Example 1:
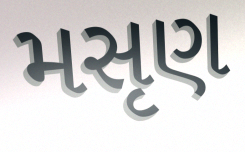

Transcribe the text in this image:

મસૃણ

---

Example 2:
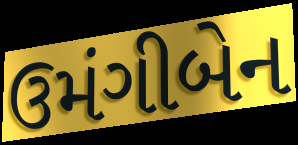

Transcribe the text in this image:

ઉમંગીબેન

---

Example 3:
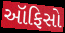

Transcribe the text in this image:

ઑફિસો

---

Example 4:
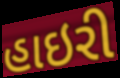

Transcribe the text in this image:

હાઇરી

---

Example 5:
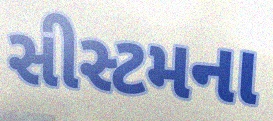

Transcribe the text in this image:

સીસ્ટમના